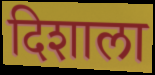
दिशाला